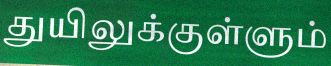
துயிலுக்குள்ளும்